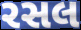
રસલ